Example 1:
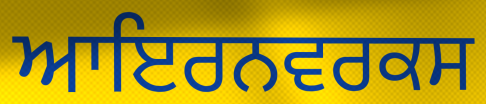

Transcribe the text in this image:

ਆਇਰਨਵਰਕਸ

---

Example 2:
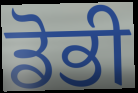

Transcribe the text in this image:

ਡੋਭੀ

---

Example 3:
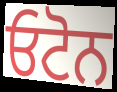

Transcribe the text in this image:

ਓਟੋਨ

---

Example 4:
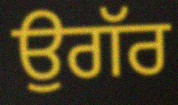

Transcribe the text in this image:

ਉਗੱਰ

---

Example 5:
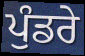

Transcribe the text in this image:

ਪੁੰਡਰੇ